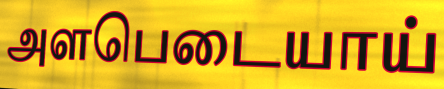
அளபெடையாய்